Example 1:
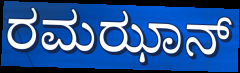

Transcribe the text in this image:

ರಮಝಾನ್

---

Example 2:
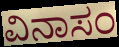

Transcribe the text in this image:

ವಿನಾಸಂ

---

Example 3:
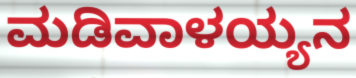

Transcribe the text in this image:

ಮಡಿವಾಳಯ್ಯನ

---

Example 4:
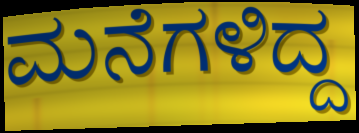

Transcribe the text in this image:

ಮನೆಗಳಿದ್ದ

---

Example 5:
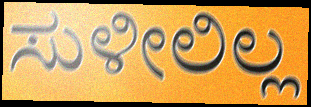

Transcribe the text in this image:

ಸುಳೀಲಿಲ್ಲ